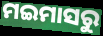
ମଇମାସରୁ